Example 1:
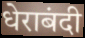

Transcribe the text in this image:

धेराबंदी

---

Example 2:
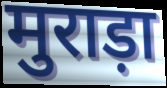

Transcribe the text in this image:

मुराड़ा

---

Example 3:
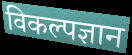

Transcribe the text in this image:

विकल्पज्ञान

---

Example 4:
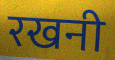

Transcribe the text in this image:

रखनी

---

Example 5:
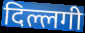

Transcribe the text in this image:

दिल्‍लगी